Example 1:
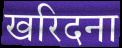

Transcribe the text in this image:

खरिदना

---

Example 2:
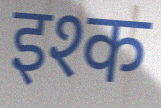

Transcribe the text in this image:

इश्क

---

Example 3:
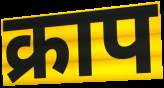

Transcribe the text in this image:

क्राप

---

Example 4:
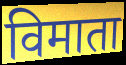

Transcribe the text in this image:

विमाता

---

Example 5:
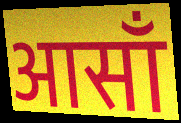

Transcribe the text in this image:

आसाँ